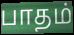
பாதம்